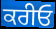
ਕਰੀਓ